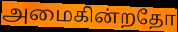
அமைகின்றதோ